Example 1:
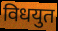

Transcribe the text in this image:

विधयुत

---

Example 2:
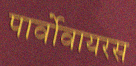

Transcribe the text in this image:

पार्वोवायरस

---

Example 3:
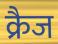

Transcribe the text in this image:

क्रैज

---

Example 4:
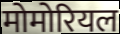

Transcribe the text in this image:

मोमोरियल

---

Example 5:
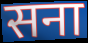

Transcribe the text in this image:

सना